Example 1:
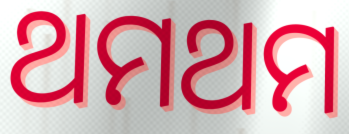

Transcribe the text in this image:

ଥମଥମ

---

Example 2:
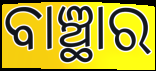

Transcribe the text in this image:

ବାଞ୍ଛାର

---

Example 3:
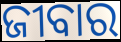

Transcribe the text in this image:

ଜୀବାର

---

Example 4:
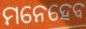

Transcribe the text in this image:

ମନେହେବ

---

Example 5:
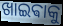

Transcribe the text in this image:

ଖାଇଵାକୁ